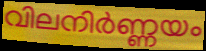
വിലനിർണ്ണയം